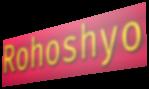
Rohoshyo